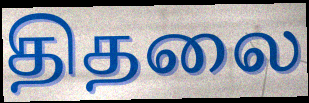
திதலை